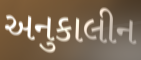
અનુકાલીન